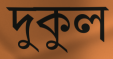
দুকুল